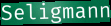
Seligmann